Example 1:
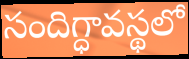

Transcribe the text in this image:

సందిగ్ధావస్థలో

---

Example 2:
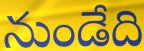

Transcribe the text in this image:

నుండేది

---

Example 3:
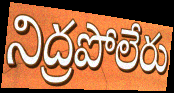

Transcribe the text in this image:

నిద్రపోలేరు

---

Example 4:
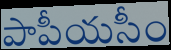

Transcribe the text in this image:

పాపీయసీం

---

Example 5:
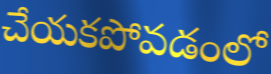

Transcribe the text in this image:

చేయకపోవడంలో